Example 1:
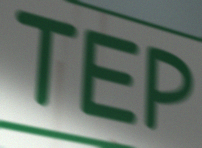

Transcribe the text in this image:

TEP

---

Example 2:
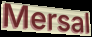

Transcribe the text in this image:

Mersal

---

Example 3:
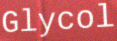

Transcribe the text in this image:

Glycol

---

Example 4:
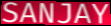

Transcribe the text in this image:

SANJAY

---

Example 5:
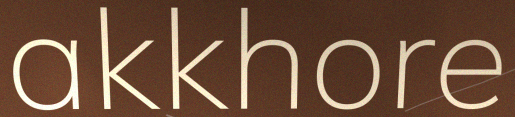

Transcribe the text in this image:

akkhore